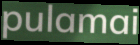
pulamai